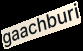
gaachburi